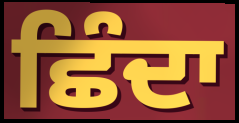
ਛਿੰਦਾ